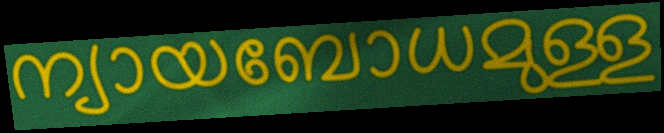
ന്യായബോധമുള്ള